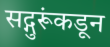
सद्गुरूंकडून